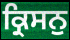
ਕ੍ਰਿਸਨੁ